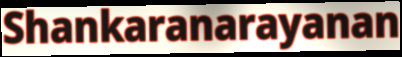
Shankaranarayanan